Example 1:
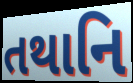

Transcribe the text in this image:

તથાનિ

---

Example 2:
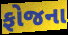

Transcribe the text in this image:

ફોજના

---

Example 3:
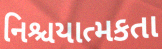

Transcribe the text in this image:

નિશ્ચયાત્મકતા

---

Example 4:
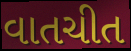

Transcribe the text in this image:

વાતચીત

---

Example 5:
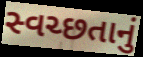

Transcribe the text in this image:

સ્વચ્છતાનું